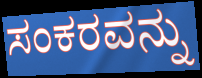
ಸಂಕರವನ್ನು